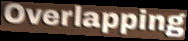
Overlapping